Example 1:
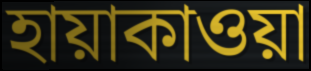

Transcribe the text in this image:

হায়াকাওয়া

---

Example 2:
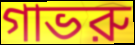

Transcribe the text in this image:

গাভরু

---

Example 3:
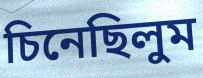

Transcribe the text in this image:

চিনেছিলুম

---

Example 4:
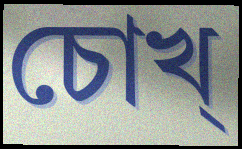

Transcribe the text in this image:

চোখ্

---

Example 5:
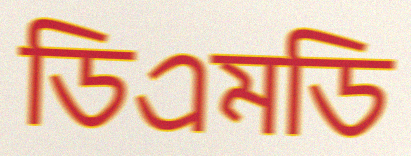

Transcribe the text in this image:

ডিএমডি